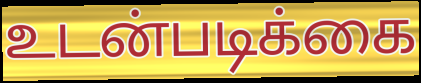
உடன்படிக்கை